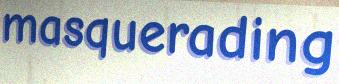
masquerading